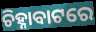
ଚିହ୍ନାବାଟରେ